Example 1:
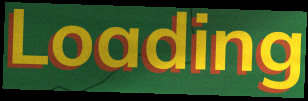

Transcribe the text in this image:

Loading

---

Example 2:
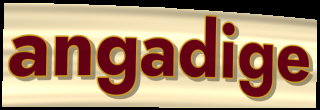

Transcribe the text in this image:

angadige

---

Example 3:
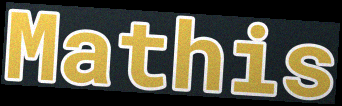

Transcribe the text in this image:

Mathis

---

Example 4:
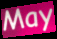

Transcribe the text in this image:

May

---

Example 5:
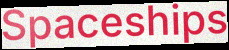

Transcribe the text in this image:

Spaceships